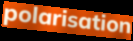
polarisation